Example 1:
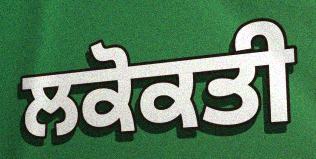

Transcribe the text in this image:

ਲਕੋਕਤੀ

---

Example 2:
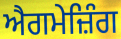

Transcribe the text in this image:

ਐਗਮੇਜ਼ਿੰਗ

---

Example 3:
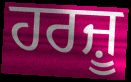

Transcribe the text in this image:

ਹਰਜ਼ੂ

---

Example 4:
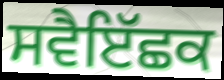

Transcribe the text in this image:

ਸਵੈਇੱਛਕ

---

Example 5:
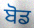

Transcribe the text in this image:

ਬੋਡ